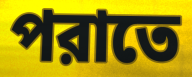
পরাতে